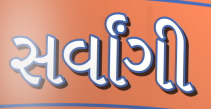
સર્વાંગી